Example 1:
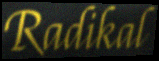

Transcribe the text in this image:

Radikal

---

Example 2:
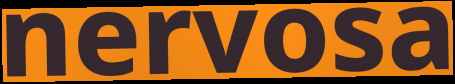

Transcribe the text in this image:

nervosa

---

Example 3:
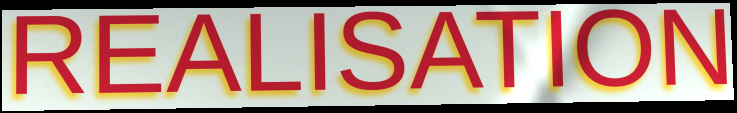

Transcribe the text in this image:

REALISATION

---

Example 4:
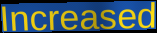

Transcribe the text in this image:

Increased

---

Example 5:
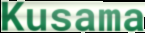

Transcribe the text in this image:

Kusama